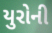
યુરોની